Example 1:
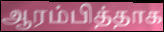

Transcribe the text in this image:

ஆரம்பித்தாக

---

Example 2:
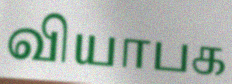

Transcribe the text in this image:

வியாபக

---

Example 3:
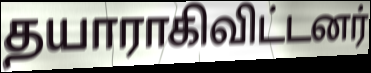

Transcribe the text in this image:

தயாராகிவிட்டனர்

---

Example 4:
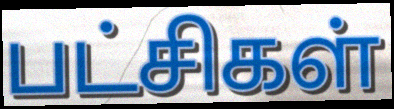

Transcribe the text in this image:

பட்சிகள்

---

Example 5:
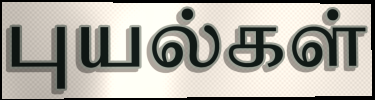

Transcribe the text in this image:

புயல்கள்